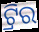
ଟ୍ରିର